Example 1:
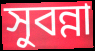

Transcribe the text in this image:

সুবন্না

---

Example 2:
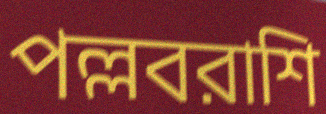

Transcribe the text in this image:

পল্লবরাশি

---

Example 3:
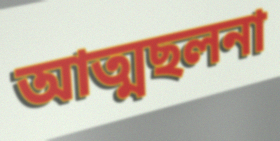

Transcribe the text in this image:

আত্মছলনা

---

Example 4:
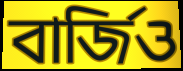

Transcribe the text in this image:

বার্জিও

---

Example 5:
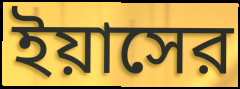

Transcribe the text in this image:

ইয়াসের